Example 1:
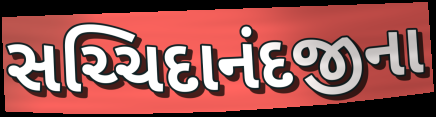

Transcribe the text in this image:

સચ્ચિદાનંદજીના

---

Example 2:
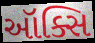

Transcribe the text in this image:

ઑક્સિ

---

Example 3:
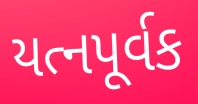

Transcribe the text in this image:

યત્નપૂર્વક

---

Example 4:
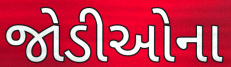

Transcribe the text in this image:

જોડીઓના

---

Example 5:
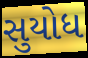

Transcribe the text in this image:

સુયોધ